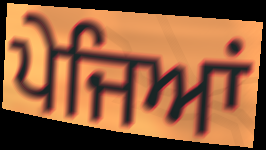
ਪੇਜਿਆਂ